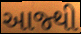
આજ્થી